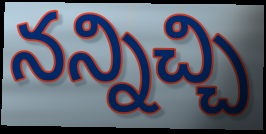
నన్నిచ్చి